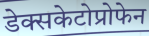
डेक्सकेटोप्रोफेन